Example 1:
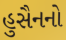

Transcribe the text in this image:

હુસૈનનો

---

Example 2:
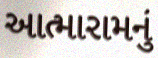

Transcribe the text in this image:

આત્મારામનું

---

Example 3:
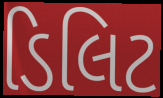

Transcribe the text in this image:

ડિલિટ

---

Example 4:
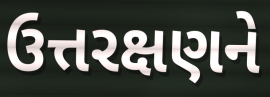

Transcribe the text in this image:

ઉત્તરક્ષણને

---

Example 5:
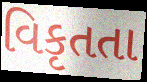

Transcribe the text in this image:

વિકૃતતા